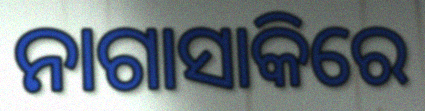
ନାଗାସାକିରେ